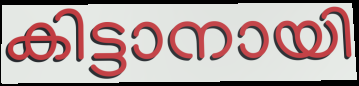
കിട്ടാനായി